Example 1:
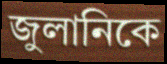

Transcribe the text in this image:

জুলানিকে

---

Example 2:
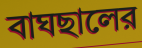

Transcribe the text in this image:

বাঘছালের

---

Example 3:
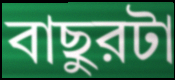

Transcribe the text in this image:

বাছুরটা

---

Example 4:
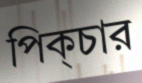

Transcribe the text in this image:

পিক্চার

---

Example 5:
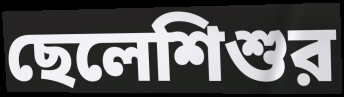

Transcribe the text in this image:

ছেলেশিশুর